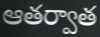
ఆతర్వాత